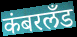
कंबरलँड